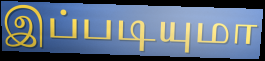
இப்படியுமா